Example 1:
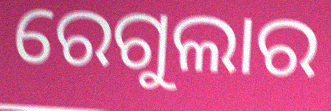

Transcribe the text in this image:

ରେଗୁଲାର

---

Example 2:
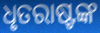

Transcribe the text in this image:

ଧୃତରାଷ୍ଟଙ୍କ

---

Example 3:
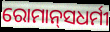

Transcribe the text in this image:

ରୋମାନ୍‌ସଧର୍ମୀ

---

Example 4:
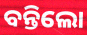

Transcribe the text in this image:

ବନ୍ତିଲୋ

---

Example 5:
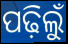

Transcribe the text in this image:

ପଢ଼ିଲୁଁ